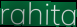
rahita